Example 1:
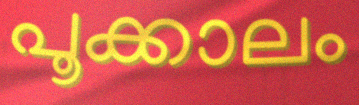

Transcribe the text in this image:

പൂക്കാലം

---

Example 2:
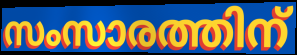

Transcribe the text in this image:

സംസാരത്തിന്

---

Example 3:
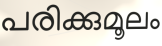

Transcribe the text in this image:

പരിക്കുമൂലം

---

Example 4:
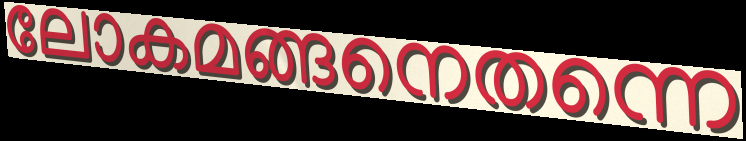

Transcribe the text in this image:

ലോകമങ്ങനെതന്നെ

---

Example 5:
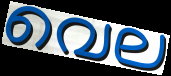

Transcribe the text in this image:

വെല